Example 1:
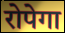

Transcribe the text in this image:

रोपेगा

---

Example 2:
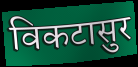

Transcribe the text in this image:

विकटासुर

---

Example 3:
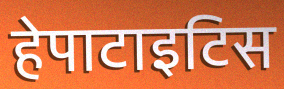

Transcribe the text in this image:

हेपाटाइटिस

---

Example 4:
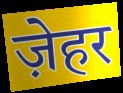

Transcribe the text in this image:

ज़ेहर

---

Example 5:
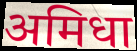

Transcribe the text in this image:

अमिधा